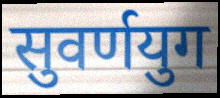
सुवर्णयुग